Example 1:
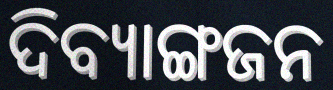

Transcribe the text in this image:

ଦିବ୍ୟାଙ୍ଗଜନ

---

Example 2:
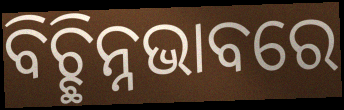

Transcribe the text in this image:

ବିଚ୍ଛିନ୍ନଭାବରେ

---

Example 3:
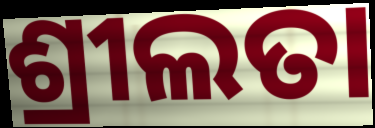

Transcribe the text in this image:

ଶ୍ରୀଲତା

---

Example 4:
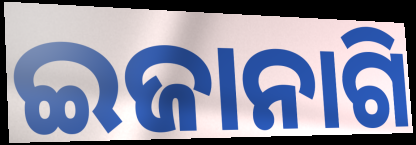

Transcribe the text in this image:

ଇଜାନାଗି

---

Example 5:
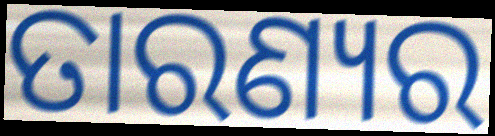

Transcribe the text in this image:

ତାରଣ୍ୟର